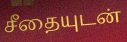
சீதையுடன்